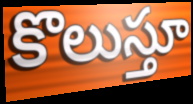
కొలుస్తూ